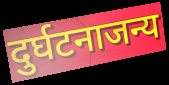
दुर्घटनाजन्य